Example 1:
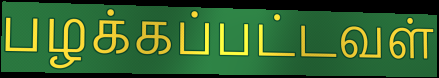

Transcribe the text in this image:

பழக்கப்பட்டவள்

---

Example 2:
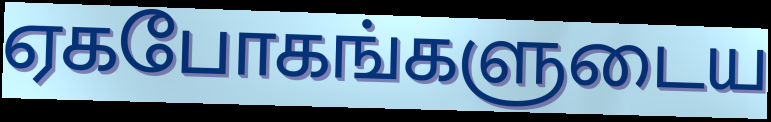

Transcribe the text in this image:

ஏகபோகங்களுடைய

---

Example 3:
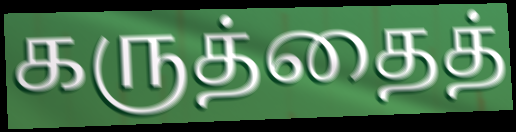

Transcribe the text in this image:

கருத்தைத்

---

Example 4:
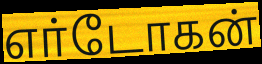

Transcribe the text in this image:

எர்டோகன்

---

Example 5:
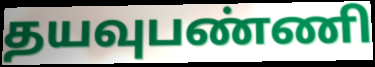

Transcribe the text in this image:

தயவுபண்ணி